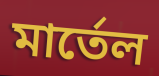
মার্তেল